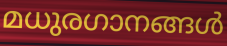
മധുരഗാനങ്ങൾ